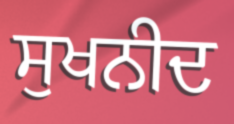
ਸੁਖਨੀਦ